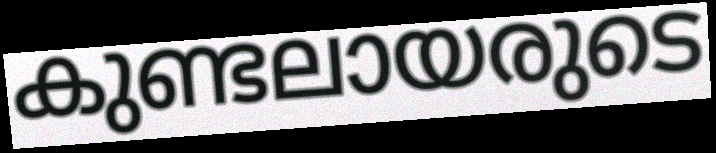
കുണ്ടലായരുടെ